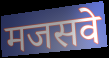
मजसवे